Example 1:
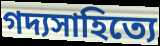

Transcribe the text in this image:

গদ্যসাহিত্যে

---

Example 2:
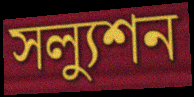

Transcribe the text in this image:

সল্যুশন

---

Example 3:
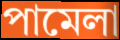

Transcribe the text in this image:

পামেলা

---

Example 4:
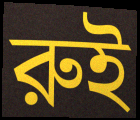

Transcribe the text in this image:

রুই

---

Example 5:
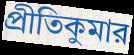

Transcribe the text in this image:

প্রীতিকুমার